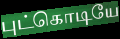
புட்கொடியே